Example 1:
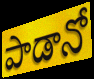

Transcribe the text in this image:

పాడానో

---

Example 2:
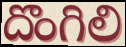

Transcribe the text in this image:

దొంగిలి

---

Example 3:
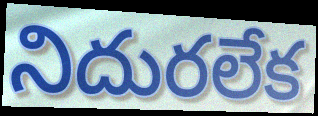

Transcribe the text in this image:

నిదురలేక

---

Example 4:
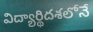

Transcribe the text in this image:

విద్యార్థిదశలోనే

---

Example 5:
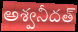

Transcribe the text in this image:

అశ్వనీదత్